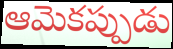
ఆమెకప్పుడు